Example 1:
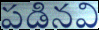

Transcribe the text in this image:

పడినవి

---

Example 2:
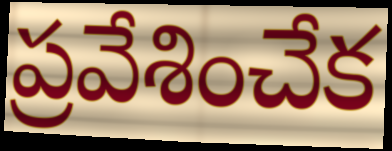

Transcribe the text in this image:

ప్రవేశించేక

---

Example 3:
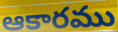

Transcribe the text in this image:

ఆకారము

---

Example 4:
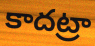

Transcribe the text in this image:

కాదట్రా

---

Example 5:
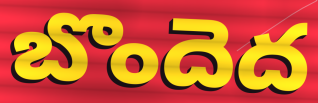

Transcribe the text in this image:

బొందెద